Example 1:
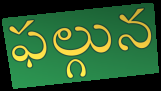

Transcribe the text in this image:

ఫల్గున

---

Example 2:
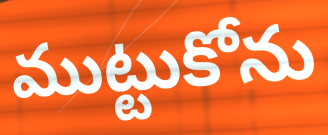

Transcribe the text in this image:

ముట్టుకోను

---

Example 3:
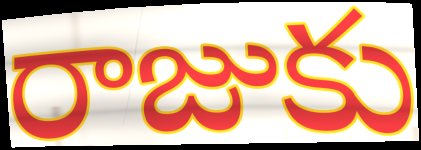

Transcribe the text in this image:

రాజుకు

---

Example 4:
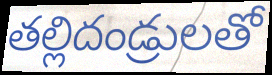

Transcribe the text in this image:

తల్లిదండ్రులతో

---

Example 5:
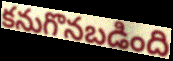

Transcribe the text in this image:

కనుగొనబడింది